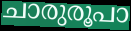
ചാരുരൂപാ